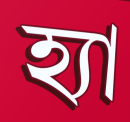
হ্যা